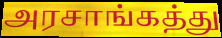
அரசாங்கத்து